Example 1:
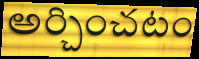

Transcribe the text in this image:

అర్చించటం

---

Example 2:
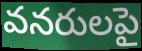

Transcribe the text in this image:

వనరులపై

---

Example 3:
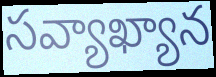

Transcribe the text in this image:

సవ్యాఖ్యాన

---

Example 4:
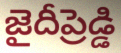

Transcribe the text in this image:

జైదీప్రెడ్డి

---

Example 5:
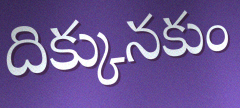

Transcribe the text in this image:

దిక్కునకుం